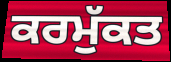
ਕਰਮੁੱਕਤ